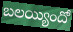
బలయ్యిందో